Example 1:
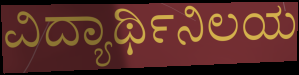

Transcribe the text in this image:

ವಿದ್ಯಾರ್ಥಿನಿಲಯ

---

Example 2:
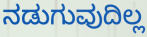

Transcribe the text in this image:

ನಡುಗುವುದಿಲ್ಲ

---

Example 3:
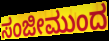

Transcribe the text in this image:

ಸಂಜೀಮುಂದ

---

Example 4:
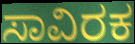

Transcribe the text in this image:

ಸಾವಿರಕ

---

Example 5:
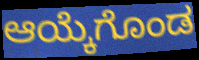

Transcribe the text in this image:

ಆಯ್ಕೆಗೊಂಡ